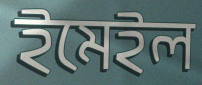
ইমেইল